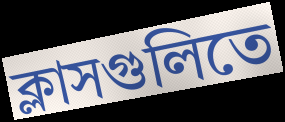
ক্লাসগুলিতে